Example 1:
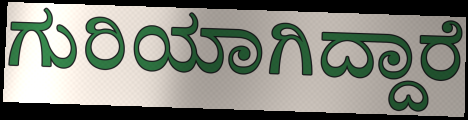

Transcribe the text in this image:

ಗುರಿಯಾಗಿದ್ದಾರೆ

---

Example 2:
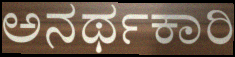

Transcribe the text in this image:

ಅನರ್ಥಕಾರಿ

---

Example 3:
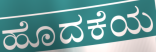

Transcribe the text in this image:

ಹೊದಕೆಯ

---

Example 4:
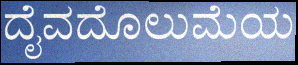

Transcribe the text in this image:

ದೈವದೊಲುಮೆಯ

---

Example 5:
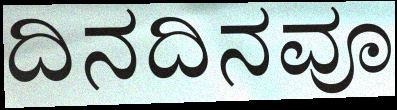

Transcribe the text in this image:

ದಿನದಿನವೂ